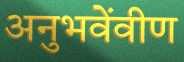
अनुभवेंवीण